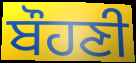
ਬੌਹਣੀ